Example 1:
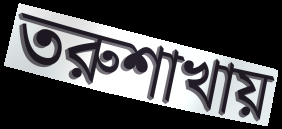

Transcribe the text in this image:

তরুশাখায়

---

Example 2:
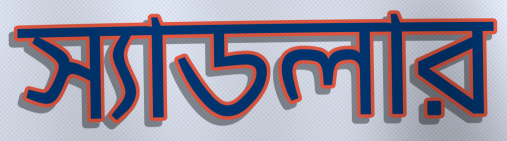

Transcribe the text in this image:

স্যাডলার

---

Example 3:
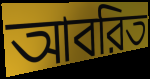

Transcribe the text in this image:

আবরিত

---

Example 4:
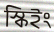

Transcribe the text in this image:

স্কিইং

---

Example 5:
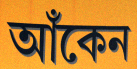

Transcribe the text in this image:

আঁকেন